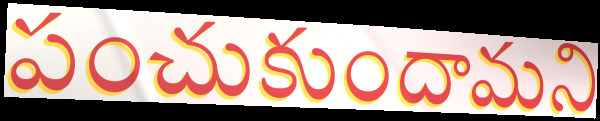
పంచుకుందామని